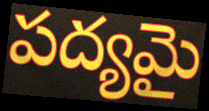
పద్యమై